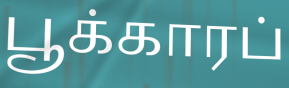
பூக்காரப்